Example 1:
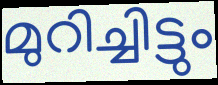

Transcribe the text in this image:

മുറിച്ചിട്ടും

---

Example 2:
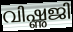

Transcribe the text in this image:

വിഷ്ണുജി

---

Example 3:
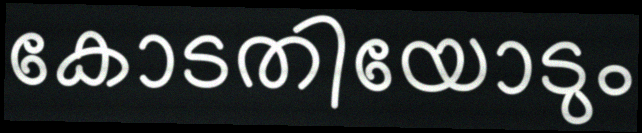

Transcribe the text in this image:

കോടതിയോടും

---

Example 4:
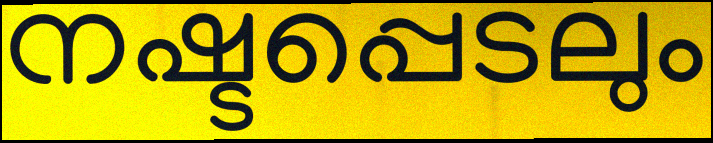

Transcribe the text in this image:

നഷ്ടപ്പെടലും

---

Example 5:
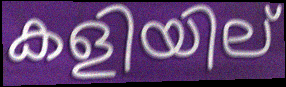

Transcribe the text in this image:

കളിയില്